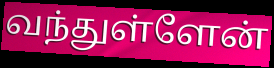
வந்துள்ளேன்